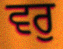
ਵਰੁ